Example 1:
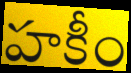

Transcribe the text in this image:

హకీం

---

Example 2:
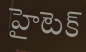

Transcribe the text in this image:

హైటెక్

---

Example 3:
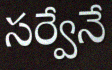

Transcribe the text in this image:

సర్వేనే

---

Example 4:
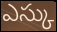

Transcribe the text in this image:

ఎస్కు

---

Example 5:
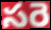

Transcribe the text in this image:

సరె